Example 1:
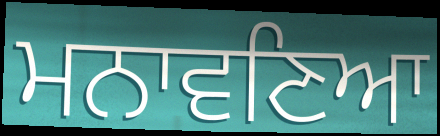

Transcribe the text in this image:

ਮਨਾਵਣਿਆ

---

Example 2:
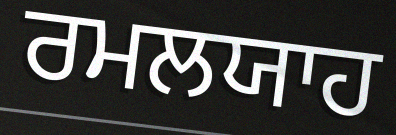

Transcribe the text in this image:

ਰਮਲਯਾਹ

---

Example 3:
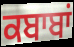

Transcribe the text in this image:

ਕਬਾਬਾਂ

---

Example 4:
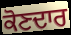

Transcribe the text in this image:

ਕੋਣਦਾਰ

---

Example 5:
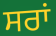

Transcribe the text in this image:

ਸਰਾਂ